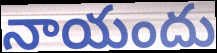
నాయందు